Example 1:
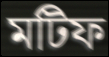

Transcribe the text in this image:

মটিফ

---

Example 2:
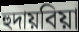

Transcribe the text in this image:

হুদায়বিয়া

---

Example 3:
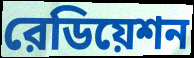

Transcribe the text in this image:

রেডিয়েশন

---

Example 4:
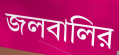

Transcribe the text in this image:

জলবালির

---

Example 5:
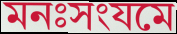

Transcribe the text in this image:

মনঃসংযমে